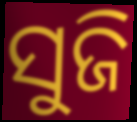
ସୁଜି